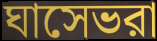
ঘাসেভরা